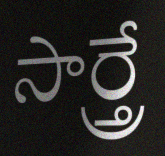
సార్త్రే